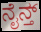
ನೈನ್ತ್